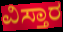
ವಿಸ್ತಾರ